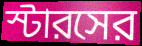
স্টারসের